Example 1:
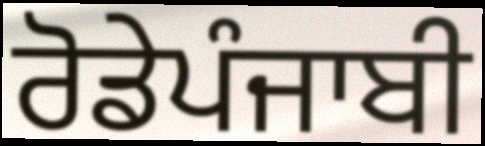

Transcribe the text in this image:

ਰੋਡੇਪੰਜਾਬੀ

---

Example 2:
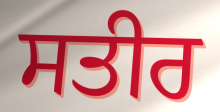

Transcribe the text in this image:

ਸਤੀਰ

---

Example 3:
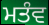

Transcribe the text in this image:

ਮਤੰਵ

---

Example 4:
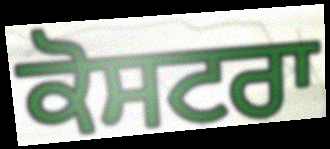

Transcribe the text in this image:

ਕੋਸਟਰਾ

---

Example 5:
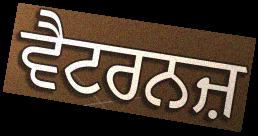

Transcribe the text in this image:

ਵੈਟਰਨਜ਼